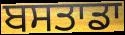
ਬਸਤਾਡਾ